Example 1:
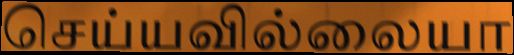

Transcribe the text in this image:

செய்யவில்லையா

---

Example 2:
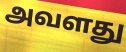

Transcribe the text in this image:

அவளது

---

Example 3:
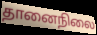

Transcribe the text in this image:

தானைநிலை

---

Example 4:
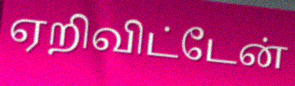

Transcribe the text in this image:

ஏறிவிட்டேன்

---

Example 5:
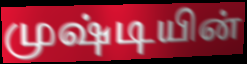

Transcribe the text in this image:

முஷ்டியின்